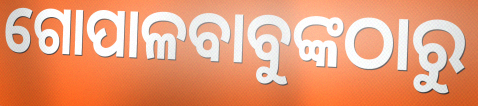
ଗୋପାଳବାବୁଙ୍କଠାରୁ